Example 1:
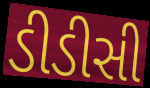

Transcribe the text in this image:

ડીડીસી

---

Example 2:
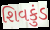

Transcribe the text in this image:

શિવકુંડ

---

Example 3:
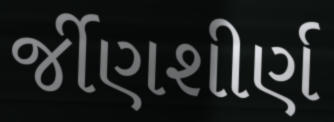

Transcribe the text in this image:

ર્જીણશીર્ણ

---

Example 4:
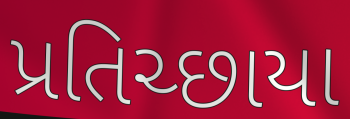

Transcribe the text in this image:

પ્રતિચ્છાયા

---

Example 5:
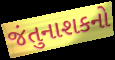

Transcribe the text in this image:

જંતુનાશકનો